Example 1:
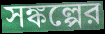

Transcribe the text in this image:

সঙ্কল্পের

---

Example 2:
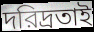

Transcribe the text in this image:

দরিদ্রতাই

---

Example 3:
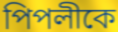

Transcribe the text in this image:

পিপলীকে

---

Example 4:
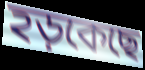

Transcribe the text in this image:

হড়কেছে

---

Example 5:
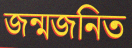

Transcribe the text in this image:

জন্মজনিত